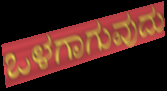
ಒಳಗಾಗುವುದು